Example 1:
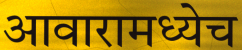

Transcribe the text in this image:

आवारामध्येच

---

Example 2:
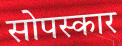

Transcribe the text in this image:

सोपस्कार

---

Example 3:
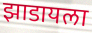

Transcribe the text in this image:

झाडायला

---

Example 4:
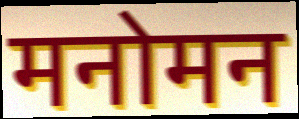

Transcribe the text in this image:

मनोमन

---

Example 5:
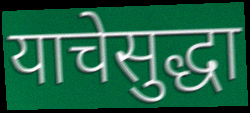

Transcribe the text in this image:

याचेसुद्धा